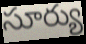
సూర్యు